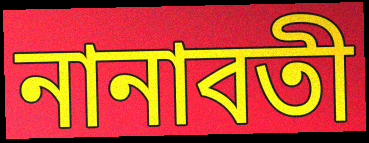
নানাবতী